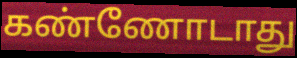
கண்ணோடாது